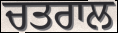
ਚਤਰਾਲ